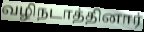
வழிநடாத்தினார்